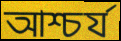
আশ্চৰ্য